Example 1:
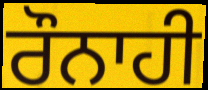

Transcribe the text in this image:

ਰੌਨਾਹੀ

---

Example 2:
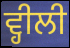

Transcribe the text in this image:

ਵ੍ਹੀਲੀ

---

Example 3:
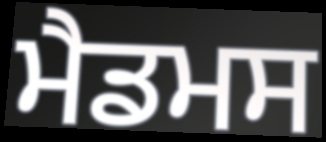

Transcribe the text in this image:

ਮੈਡਮਸ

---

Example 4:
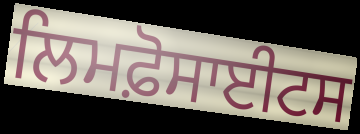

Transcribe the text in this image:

ਲਿਮਫ਼ੋਸਾਈਟਸ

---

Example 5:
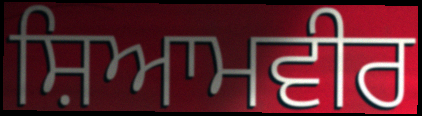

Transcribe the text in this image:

ਸ਼ਿਆਮਵੀਰ